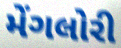
મેંગલોરી